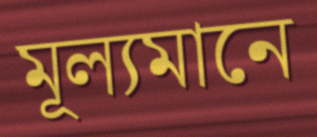
মূল্যমানে